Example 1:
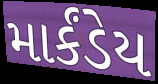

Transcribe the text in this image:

માર્કંડેય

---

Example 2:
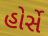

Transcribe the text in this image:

હોર્સે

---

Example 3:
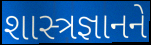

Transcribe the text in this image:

શાસ્ત્રજ્ઞાનને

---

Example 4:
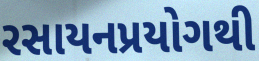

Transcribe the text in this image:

રસાયનપ્રયોગથી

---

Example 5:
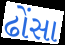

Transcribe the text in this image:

ઢોંસા